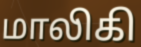
மாலிகி